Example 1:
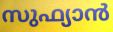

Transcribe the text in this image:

സുഫ്യാൻ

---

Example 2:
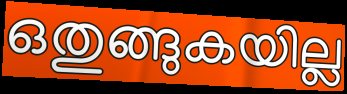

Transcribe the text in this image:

ഒതുങ്ങുകയില്ല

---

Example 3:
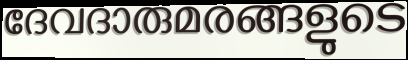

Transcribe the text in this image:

ദേവദാരുമരങ്ങളുടെ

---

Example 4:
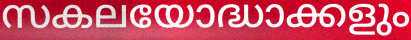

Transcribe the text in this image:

സകലയോദ്ധാക്കളും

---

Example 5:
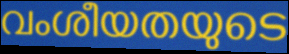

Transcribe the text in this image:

വംശീയതയുടെ